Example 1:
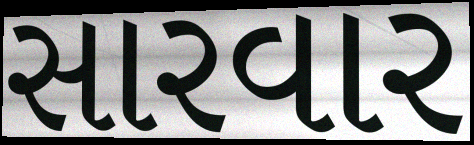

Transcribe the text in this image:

સારવાર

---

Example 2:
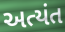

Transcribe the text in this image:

અત્યંત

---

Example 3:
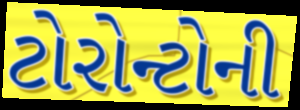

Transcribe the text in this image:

ટોરોન્ટોની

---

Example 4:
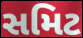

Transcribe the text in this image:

સમિટ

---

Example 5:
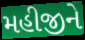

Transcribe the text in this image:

મહીજીને